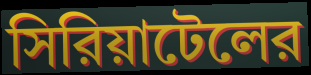
সিরিয়াটেলের